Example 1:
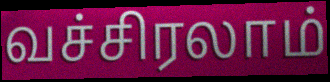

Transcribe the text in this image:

வச்சிரலாம்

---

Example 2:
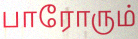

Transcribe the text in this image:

பாரோரும்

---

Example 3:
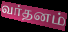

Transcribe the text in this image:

வர்தனம்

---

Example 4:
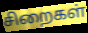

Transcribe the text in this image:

சிறைகள்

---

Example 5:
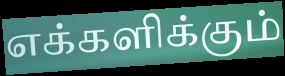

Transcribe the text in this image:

எக்களிக்கும்